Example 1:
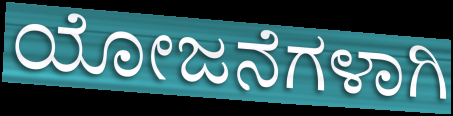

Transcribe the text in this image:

ಯೋಜನೆಗಳಾಗಿ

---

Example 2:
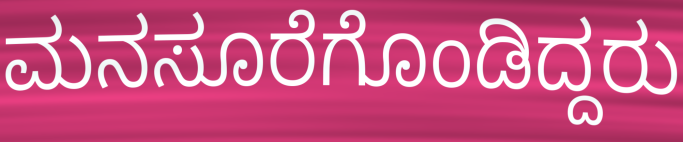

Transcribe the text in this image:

ಮನಸೂರೆಗೊಂಡಿದ್ದರು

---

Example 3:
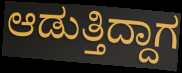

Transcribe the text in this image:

ಆಡುತ್ತಿದ್ದಾಗ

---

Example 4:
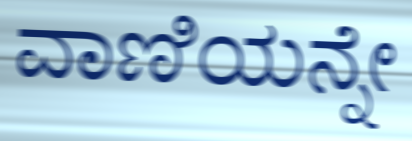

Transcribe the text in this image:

ವಾಣಿಯನ್ನೇ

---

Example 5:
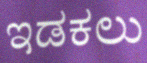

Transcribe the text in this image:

ಇಡಕಲು